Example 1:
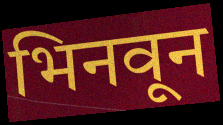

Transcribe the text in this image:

भिनवून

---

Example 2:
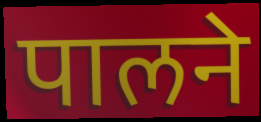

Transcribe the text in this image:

पालने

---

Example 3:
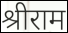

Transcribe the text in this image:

श्रीराम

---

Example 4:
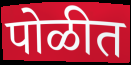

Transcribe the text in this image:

पोळीत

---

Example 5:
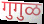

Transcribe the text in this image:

गुगुळ